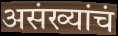
असंख्यांचं